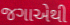
જગાએથી